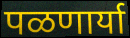
पळणार्या